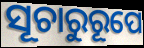
ସୂଚାରୁରୂପେ